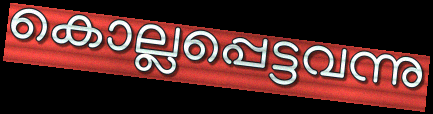
കൊല്ലപ്പെട്ടവന്നു